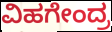
ವಿಹಗೇಂದ್ರ